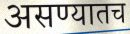
असण्यातच